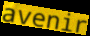
avenir